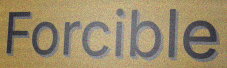
Forcible